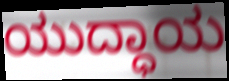
ಯುದ್ಧಾಯ